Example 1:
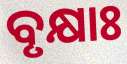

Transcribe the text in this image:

ବୃକ୍ଷାଃ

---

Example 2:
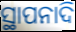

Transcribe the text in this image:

ସ୍ଥାପନାଦି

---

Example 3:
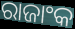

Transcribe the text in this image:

ରାଜାଂକ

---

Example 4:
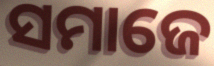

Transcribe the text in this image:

ସମାଜେ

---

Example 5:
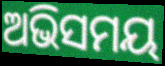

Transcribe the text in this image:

ଅଭିସମୟ